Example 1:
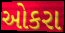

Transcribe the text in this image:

ઓકરા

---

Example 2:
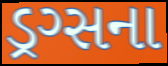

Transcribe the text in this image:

ડ્રગ્સના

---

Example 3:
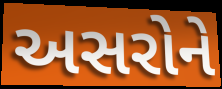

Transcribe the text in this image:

અસરોને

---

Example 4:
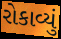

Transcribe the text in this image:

રોકાવ્યું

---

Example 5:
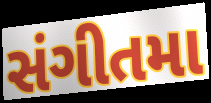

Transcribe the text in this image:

સંગીતમા